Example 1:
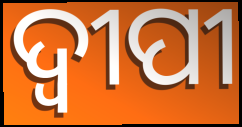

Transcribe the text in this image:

ଦ୍ଵୀପୀ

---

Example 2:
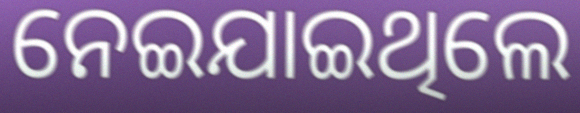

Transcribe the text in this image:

ନେଇଯାଇଥିଲେ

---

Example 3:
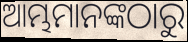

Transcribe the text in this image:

ଆମ୍ଭମାନଙ୍କଠାରୁ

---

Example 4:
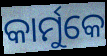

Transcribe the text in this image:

କାର୍ମୁକେ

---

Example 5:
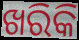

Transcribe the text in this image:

ଖରିକି